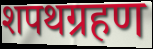
शपथग्रहण